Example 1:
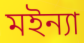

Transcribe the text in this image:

মইন্যা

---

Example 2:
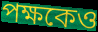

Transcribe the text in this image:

পক্ষকেও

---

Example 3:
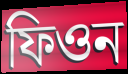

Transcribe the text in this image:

ফিওন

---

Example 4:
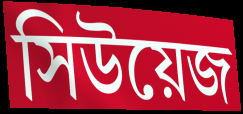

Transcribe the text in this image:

সিউয়েজ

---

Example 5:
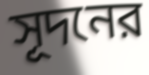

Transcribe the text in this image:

সূদনের